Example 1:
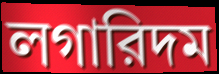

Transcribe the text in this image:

লগারিদম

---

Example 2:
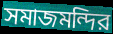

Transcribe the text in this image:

সমাজমন্দির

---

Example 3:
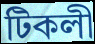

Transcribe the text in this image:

টিকলী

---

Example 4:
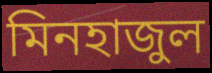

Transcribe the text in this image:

মিনহাজুল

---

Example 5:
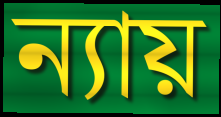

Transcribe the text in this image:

ন্যায়